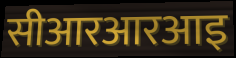
सीआरआरआइ